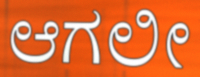
ಆಗಲೀ